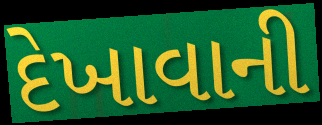
દેખાવાની